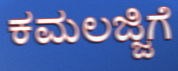
ಕಮಲಜ್ಜಿಗೆ